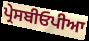
ਪ੍ਰੇਸਬੀਓਪੀਆ